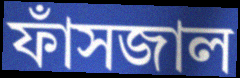
ফাঁসজাল